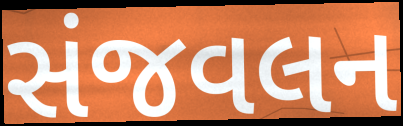
સંજવલન